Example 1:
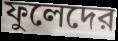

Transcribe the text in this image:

ফুলেদের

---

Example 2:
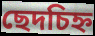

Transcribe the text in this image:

ছেদচিহ্ন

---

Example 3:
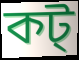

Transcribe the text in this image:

কট্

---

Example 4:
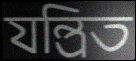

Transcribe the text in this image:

যন্ত্রিত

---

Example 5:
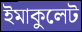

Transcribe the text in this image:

ইমাকুলেট